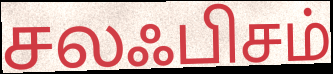
சலஃபிசம்